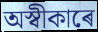
অস্বীকাৰে